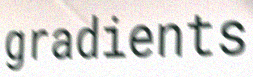
gradients